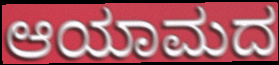
ಆಯಾಮದ